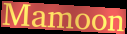
Mamoon